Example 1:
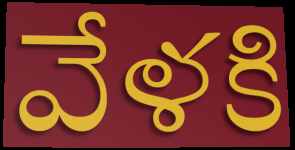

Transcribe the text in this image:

వేళకి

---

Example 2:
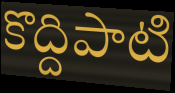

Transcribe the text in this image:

కొద్దిపాటి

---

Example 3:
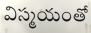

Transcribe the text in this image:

విస్మయంతో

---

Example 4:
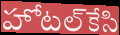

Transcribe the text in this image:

హోటల్‌కేసి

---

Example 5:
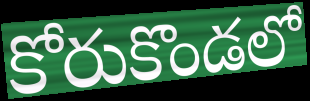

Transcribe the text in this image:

కోరుకొండలో